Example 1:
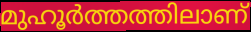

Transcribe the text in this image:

മുഹൂർത്തത്തിലാണ്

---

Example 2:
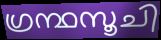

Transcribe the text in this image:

ഗ്രന്ഥസൂചി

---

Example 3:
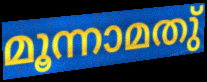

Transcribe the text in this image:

മൂന്നാമതു്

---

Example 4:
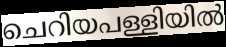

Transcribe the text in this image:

ചെറിയപള്ളിയിൽ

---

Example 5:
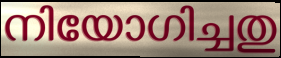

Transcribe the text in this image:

നിയോഗിച്ചതു